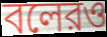
বলেরও